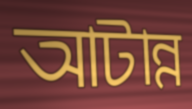
আটান্ন